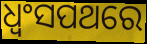
ଧ୍ବଂସପଥରେ